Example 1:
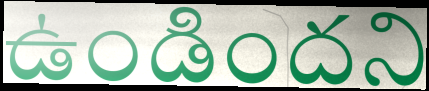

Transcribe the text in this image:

ఉండిందని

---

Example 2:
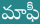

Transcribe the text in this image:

మాఫీ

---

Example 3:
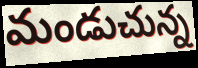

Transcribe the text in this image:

మండుచున్న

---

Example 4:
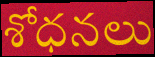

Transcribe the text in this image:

శోధనలు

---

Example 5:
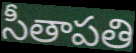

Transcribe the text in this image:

సీతాపతి